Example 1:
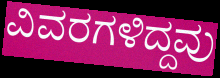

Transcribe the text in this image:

ವಿವರಗಳಿದ್ದವು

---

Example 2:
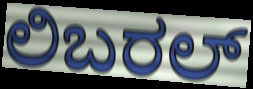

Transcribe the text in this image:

ಲಿಬರಲ್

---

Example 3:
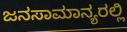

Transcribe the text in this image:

ಜನಸಾಮಾನ್ಯರಲ್ಲಿ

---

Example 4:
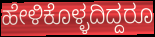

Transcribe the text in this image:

ಹೇಳಿಕೊಳ್ಳದಿದ್ದರೂ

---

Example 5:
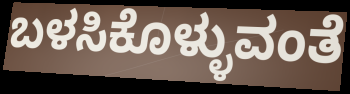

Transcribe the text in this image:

ಬಳಸಿಕೊಳ್ಳುವಂತೆ